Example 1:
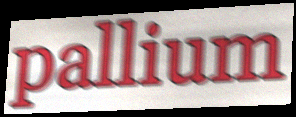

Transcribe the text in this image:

pallium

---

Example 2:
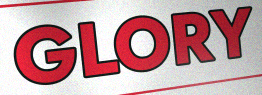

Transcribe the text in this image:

GLORY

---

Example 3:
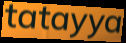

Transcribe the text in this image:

tatayya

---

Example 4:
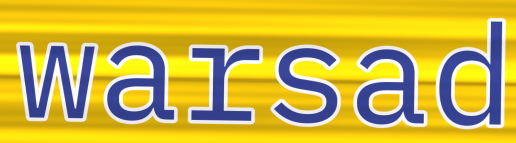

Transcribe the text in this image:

warsad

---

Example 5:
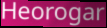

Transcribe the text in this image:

Heorogar